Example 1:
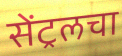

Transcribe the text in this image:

सेंट्रलचा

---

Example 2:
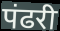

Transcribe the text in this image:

पंढरी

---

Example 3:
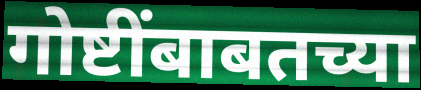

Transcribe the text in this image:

गोष्टींबाबतच्या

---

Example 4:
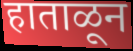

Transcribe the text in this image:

हाताळून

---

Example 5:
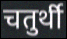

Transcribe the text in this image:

चतुर्थी